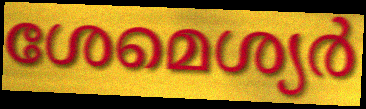
ശേമെശ്യർ